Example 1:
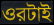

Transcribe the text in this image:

ওরটাই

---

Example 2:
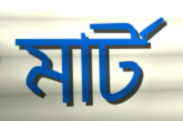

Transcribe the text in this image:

মার্ট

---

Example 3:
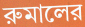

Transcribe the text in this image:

রুমালের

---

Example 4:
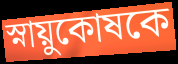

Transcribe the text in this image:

স্নায়ুকোষকে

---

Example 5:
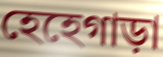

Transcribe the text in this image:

হেহেগাড়া